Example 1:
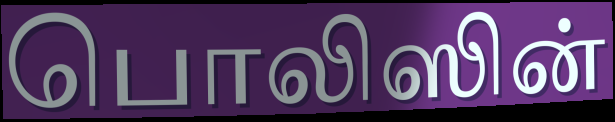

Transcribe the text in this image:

பொலிஸின்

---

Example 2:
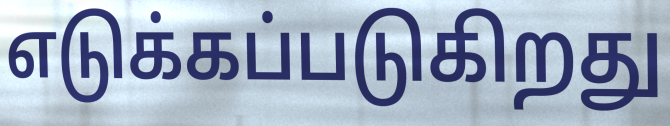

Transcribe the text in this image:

எடுக்கப்படுகிறது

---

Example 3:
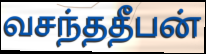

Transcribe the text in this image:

வசந்ததீபன்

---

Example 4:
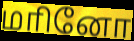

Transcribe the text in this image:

மரினோ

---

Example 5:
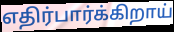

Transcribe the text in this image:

எதிர்பார்க்கிறாய்